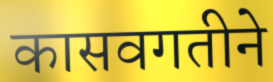
कासवगतीने